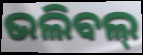
ଭଲିବଲ୍